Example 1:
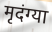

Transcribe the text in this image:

मृदंग्या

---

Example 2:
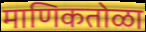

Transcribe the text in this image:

माणिकतोळा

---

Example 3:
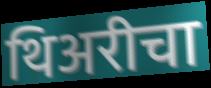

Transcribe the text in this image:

थिअरीचा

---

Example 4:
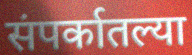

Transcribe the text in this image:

संपर्कातल्या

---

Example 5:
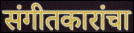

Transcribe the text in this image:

संगीतकारांचा